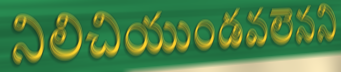
నిలిచియుండవలెనని